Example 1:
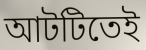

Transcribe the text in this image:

আটটিতেই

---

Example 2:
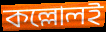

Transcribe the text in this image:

কল্লোলই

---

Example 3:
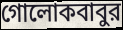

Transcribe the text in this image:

গোলোকবাবুর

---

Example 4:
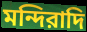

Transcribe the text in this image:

মন্দিরাদি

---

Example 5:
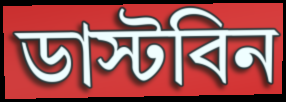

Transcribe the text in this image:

ডাস্টবিন